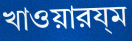
খাওয়ারয্ম